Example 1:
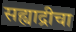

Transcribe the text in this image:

सह्याद्रीचा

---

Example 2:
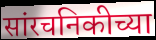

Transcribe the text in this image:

सांरचनिकीच्या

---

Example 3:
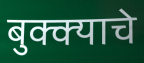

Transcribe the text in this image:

बुक्क्याचे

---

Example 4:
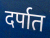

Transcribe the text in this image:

दर्पात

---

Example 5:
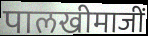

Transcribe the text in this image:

पालखीमाजीं